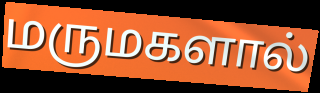
மருமகளால்